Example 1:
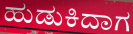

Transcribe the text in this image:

ಹುಡುಕಿದಾಗ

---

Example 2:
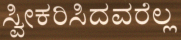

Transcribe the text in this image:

ಸ್ವೀಕರಿಸಿದವರೆಲ್ಲ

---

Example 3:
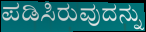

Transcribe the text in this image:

ಪಡಿಸಿರುವುದನ್ನು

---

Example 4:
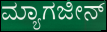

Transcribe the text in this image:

ಮ್ಯಾಗಜೀನ್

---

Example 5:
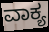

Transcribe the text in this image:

ವಾಕ್ಯ